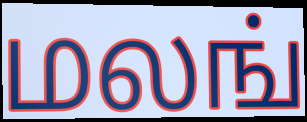
மலங்